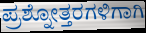
ಪ್ರಶ್ನೋತ್ತರಗಳಿಗಾಗಿ